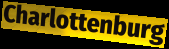
Charlottenburg